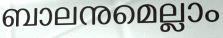
ബാലനുമെല്ലാം